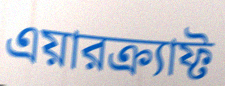
এয়ারক্র্যাফ্ট